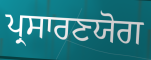
ਪ੍ਰਸਾਰਣਯੋਗ